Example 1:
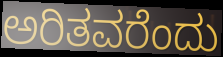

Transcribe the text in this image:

ಅರಿತವರೆಂದು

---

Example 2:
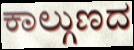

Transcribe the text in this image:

ಕಾಲ್ಗುಣದ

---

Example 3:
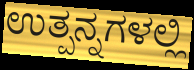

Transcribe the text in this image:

ಉತ್ಪನ್ನಗಳಲ್ಲಿ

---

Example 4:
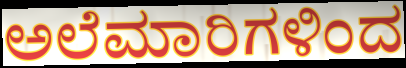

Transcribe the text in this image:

ಅಲೆಮಾರಿಗಳಿಂದ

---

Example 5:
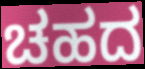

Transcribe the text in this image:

ಚಹದ